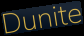
Dunite